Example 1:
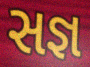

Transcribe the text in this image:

સજ્ઞ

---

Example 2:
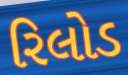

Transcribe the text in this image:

રિલોડ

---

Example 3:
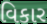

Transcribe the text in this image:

વિકાર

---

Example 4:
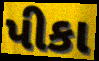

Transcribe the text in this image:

પીકા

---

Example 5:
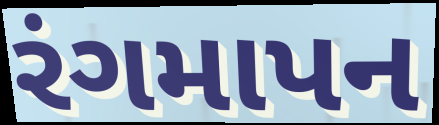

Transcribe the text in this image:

રંગમાપન